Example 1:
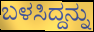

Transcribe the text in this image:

ಬಳಸಿದ್ದನ್ನು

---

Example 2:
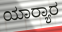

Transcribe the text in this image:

ಯಾರ‍್ಯಾರ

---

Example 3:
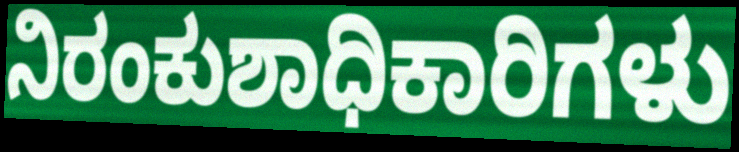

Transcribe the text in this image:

ನಿರಂಕುಶಾಧಿಕಾರಿಗಳು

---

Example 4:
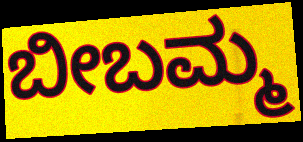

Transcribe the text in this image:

ಬೀಬಮ್ಮ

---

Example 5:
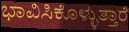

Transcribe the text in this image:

ಭಾವಿಸಿಕೊಳ್ಳುತ್ತಾರೆ